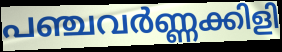
പഞ്ചവർണ്ണക്കിളി